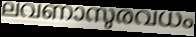
ലവണാസുരവധം